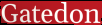
Gatedon